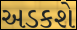
અડકશે